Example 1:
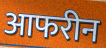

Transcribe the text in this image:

आफरीन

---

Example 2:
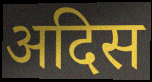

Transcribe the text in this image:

अदिस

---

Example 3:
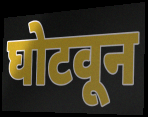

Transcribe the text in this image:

घोटवून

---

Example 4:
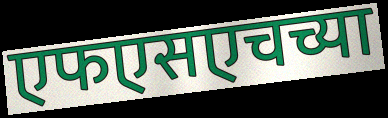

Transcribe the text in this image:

एफएसएचच्या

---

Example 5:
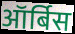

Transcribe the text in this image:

ऑर्बिस